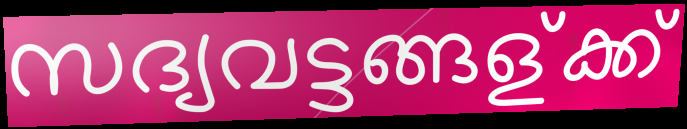
സദ്യവട്ടങ്ങള്ക്ക്